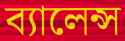
ব্যালেন্স